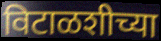
विटाळशीच्या